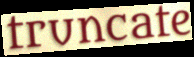
truncate